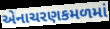
એનાચરણકમળમાં